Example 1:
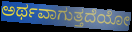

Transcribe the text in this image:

ಅರ್ಥವಾಗುತ್ತದೆಯೋ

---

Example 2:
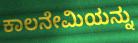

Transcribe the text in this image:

ಕಾಲನೇಮಿಯನ್ನು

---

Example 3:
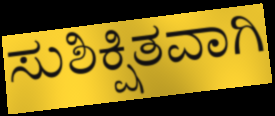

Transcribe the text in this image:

ಸುಶಿಕ್ಷಿತವಾಗಿ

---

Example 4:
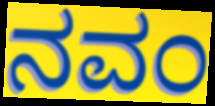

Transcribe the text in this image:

ನವಂ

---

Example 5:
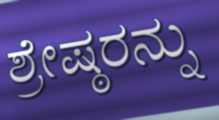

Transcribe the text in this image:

ಶ್ರೇಷ್ಠರನ್ನು